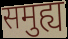
समुह्य